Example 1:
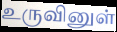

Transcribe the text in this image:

உருவினுள்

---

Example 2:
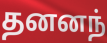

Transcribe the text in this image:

தனனந்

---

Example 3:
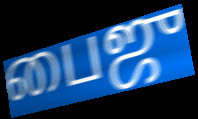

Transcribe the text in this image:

பைஜு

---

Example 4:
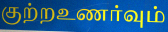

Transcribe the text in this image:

குற்றஉணர்வும்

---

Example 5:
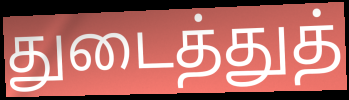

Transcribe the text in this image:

துடைத்துத்